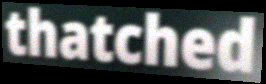
thatched